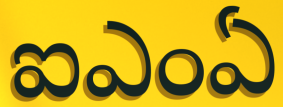
ఐఎంఏ